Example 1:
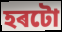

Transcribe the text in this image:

হৰটো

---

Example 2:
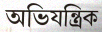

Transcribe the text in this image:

অভিযন্ত্ৰিক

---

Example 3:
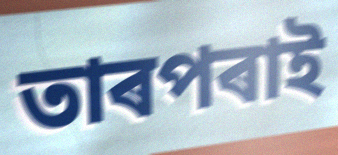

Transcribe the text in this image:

তাৰপৰাই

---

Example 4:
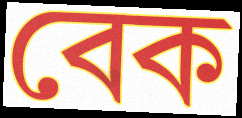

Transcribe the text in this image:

বেক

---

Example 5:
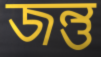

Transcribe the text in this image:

জন্তু